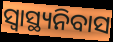
ସ୍ୱାସ୍ଥ୍ୟନିବାସ